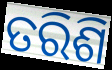
ତରିଶି